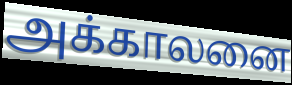
அக்காலனை